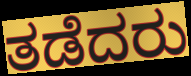
ತಡೆದರು